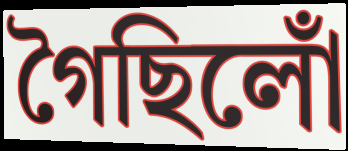
গৈছিলোঁ